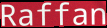
Raffan